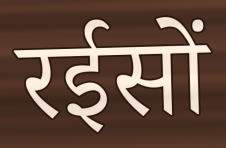
रईसों